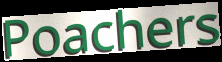
Poachers